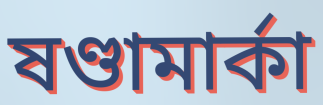
ষণ্ডামার্কা